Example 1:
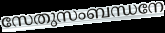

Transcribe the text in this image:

സേതുസംബന്ധനേ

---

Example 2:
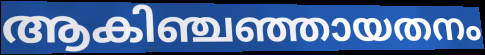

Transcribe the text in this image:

ആകിഞ്ചഞ്ഞായതനം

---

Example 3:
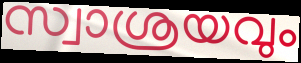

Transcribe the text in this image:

സ്വാശ്രയവും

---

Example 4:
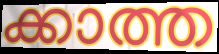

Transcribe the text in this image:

ക്കാത്ത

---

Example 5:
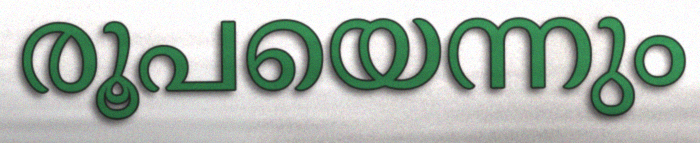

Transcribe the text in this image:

രൂപയെന്നും